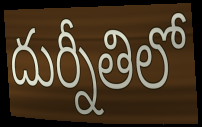
దుర్నీతిలో